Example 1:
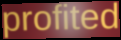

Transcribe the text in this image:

profited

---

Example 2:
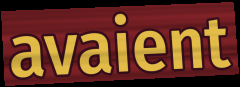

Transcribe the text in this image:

avaient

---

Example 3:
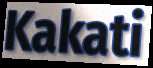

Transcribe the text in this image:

Kakati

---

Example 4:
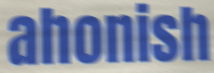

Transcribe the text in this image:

ahonish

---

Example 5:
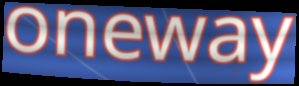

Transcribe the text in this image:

oneway